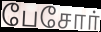
பேசோர்